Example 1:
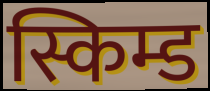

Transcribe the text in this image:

स्किम्ड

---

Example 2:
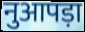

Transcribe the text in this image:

नुआपड़ा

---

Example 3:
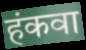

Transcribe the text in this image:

हंकवा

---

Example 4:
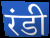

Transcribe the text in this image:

रंडी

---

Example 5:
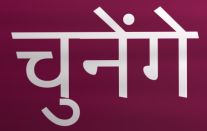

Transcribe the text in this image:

चुनेंगे